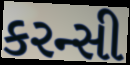
કરન્સી